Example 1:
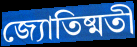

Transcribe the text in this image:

জ্যোতিষ্মতী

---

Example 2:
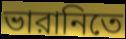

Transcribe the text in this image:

ভারানিতে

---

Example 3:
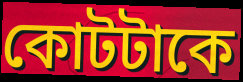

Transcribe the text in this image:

কোটটাকে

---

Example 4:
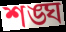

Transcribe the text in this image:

শঙ্ঘ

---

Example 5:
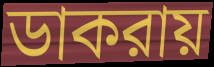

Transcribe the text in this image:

ডাকরায়